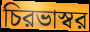
চিরভাস্বর